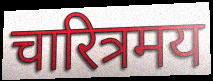
चारित्रमय